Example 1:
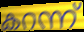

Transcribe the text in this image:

കറന്ന്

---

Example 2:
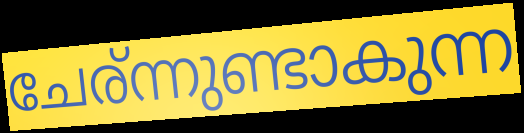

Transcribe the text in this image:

ചേര്ന്നുണ്ടാകുന്ന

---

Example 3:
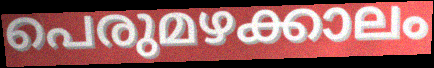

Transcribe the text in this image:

പെരുമഴക്കാലം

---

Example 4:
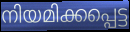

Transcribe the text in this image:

നിയമിക്കപ്പെട്ട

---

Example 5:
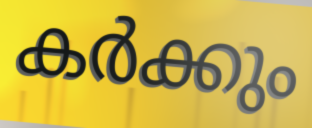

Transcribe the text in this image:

കർക്കും